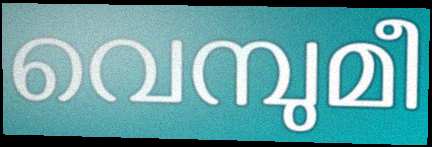
വെമ്പുമീ